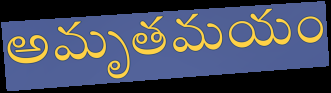
అమృతమయం